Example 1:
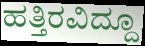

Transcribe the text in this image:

ಹತ್ತಿರವಿದ್ದೂ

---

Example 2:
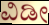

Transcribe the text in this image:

ವಿಡೀ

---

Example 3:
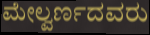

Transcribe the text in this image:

ಮೇಲ್ವರ್ಣದವರು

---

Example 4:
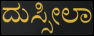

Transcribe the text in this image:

ದುಸ್ಸೀಲಾ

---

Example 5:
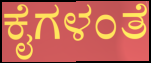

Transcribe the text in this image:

ಕೈಗಳಂತೆ